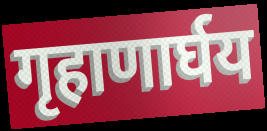
गृहाणार्घय